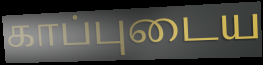
காப்புடைய